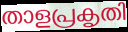
താളപ്രകൃതി